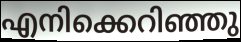
എനിക്കെറിഞ്ഞു